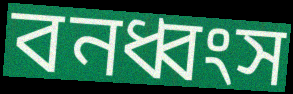
বনধ্বংস